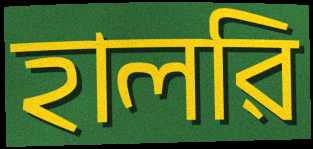
হালৱি